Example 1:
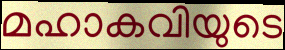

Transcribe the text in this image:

മഹാകവിയുടെ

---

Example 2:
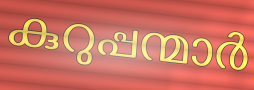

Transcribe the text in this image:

കുറുപ്പന്മാർ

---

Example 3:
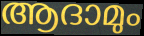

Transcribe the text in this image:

ആദാമും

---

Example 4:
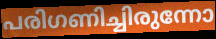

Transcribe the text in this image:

പരിഗണിച്ചിരുന്നോ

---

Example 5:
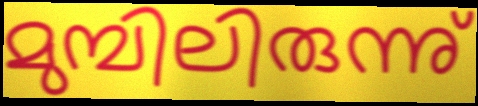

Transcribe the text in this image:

മുമ്പിലിരുന്നു്